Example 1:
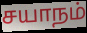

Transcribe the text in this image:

சயாநம்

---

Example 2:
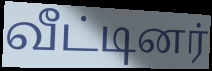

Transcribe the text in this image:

வீட்டினர்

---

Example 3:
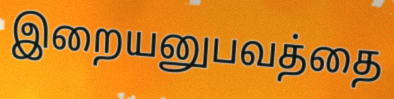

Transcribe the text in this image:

இறையனுபவத்தை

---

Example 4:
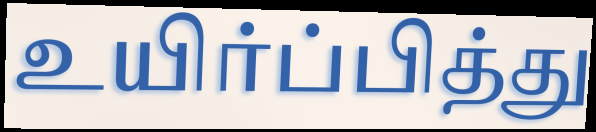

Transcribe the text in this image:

உயிர்ப்பித்து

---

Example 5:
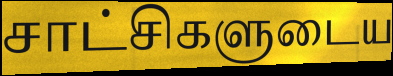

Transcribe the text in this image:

சாட்சிகளுடைய